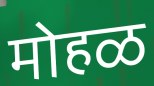
मोहळ